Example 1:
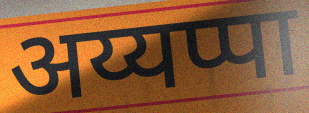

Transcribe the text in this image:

अय्यप्पा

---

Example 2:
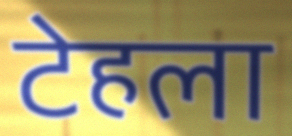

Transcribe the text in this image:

टेहला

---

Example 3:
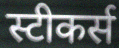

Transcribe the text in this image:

स्टीकर्स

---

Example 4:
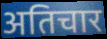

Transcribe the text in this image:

अतिचार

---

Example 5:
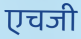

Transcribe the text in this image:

एचजी